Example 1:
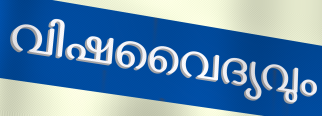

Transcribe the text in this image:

വിഷവൈദ്യവും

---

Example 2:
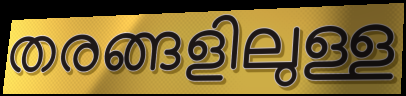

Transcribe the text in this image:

തരങ്ങളിലുള്ള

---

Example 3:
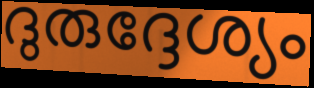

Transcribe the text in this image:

ദുരുദ്ദേശ്യം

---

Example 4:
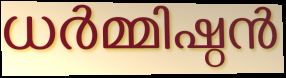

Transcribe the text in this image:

ധർമ്മിഷ്ഠൻ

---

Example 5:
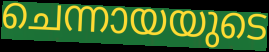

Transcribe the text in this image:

ചെന്നായയുടെ